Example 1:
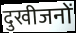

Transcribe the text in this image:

दुखीजनों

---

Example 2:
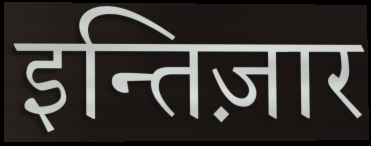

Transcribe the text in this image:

इन्तिज़ार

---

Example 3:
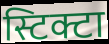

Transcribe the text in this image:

स्टिक्टा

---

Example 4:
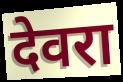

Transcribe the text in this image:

देवरा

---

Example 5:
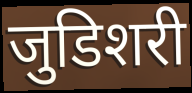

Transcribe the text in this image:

जुडिशरी